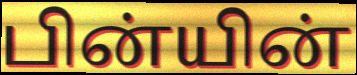
பின்யின்